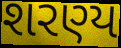
શરણ્ય